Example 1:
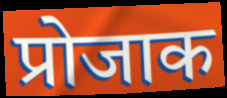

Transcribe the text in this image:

प्रोजाक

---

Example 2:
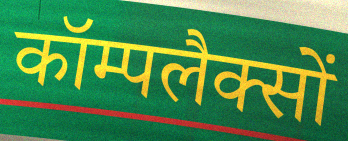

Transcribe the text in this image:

कॉम्पलैक्सों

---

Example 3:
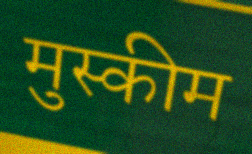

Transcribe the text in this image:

मुस्कीम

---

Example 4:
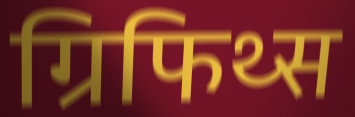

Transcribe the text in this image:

ग्रिफिथ्स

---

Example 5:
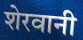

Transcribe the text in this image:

शेरवानी